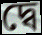
দ্বে